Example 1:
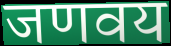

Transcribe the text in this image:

जणवय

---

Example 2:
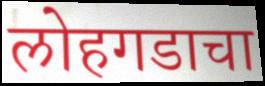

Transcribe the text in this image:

लोहगडाचा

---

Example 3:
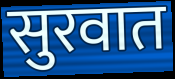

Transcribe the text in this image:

सुरवात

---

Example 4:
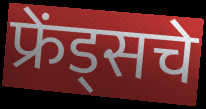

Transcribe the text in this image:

फ्रेंड्सचे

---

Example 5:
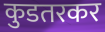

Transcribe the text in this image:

कुडतरकर